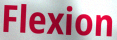
Flexion